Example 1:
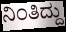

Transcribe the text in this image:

ನಿಂತಿದ್ದು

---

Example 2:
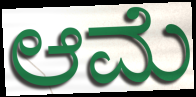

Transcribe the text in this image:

ಆಮೆ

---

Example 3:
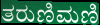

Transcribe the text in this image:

ತರುಣಿಮಣಿ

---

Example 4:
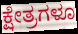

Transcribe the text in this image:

ಕ್ಷೇತ್ರಗಳೂ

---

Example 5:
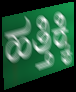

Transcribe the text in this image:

ಹತ್ತಿಕ್ಕಿ